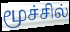
மூச்சில்